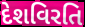
દેશવિરતિ